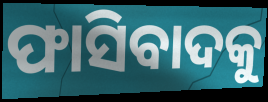
ଫାସିବାଦକୁ